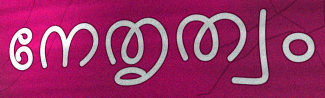
നേതൃത്വം